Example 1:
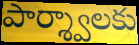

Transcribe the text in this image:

పార్శ్వాలకు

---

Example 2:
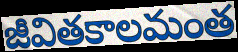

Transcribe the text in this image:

జీవితకాలమంత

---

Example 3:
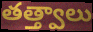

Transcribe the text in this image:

తత్త్వాలు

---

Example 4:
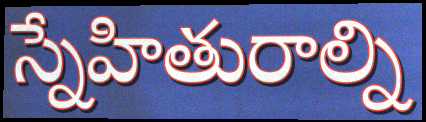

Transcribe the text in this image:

స్నేహితురాల్ని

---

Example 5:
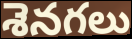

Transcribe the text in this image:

శెనగలు